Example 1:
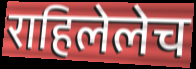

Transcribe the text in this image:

राहिलेलेच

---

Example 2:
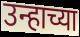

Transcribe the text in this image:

उन्हाच्या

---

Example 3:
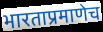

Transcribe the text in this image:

भारताप्रमाणेच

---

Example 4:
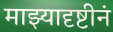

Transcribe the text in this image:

माझ्यादृष्टीनं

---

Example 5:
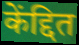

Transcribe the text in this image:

केंद्दित